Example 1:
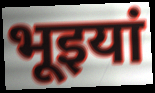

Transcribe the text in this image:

भूइयां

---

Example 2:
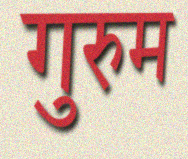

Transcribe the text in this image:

गुरुम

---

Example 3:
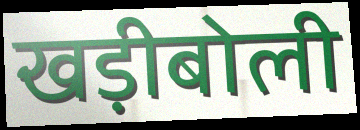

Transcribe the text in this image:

खड़ीबोली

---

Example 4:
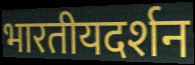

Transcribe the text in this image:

भारतीयदर्शन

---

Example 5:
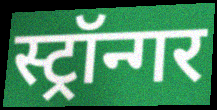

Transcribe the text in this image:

स्ट्रॉन्गर